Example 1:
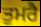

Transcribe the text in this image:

ਤੁਮਰੈ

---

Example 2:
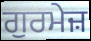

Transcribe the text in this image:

ਗੁਰਮੇਜ਼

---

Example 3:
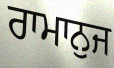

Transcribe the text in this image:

ਰਾਮਾਨੁਜ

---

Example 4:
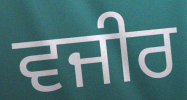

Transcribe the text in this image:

ਵਜੀਰ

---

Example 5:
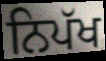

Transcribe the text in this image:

ਨਿਪੱਖ